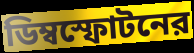
ডিম্বস্ফোটনের